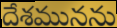
దేశమునను